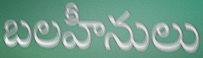
బలహీనులు